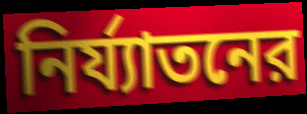
নির্য্যাতনের